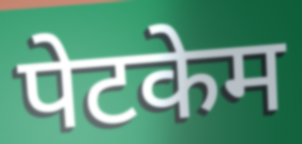
पेटकेम